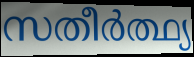
സതീർത്ഥ്യ